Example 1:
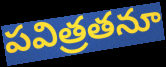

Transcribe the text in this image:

పవిత్రతనూ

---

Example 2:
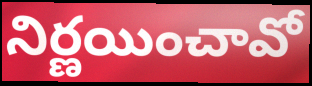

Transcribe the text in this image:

నిర్ణయించావో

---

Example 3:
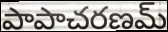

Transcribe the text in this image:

పాపాచరణమ్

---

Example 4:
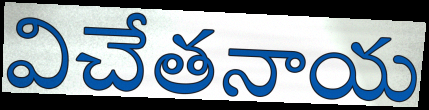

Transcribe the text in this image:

విచేతనాయ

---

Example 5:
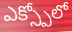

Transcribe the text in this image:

ఎక్స్పోలో